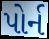
પોર્ન